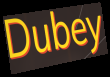
Dubey